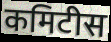
कमिटीस